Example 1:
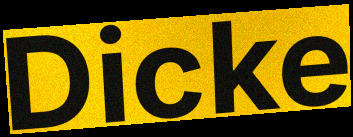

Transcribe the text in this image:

Dicke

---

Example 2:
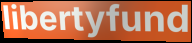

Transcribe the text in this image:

libertyfund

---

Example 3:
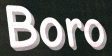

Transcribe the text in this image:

Boro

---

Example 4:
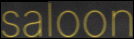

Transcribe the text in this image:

saloon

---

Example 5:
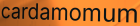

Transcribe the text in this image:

cardamomum